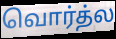
வொர்த்ல